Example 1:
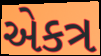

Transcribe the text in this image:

એકત્ર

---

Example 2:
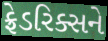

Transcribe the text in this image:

ફ્રેડરિક્સને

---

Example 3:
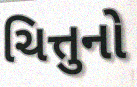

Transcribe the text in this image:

ચિત્તુનો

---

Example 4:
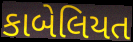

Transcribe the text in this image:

કાબેલિયત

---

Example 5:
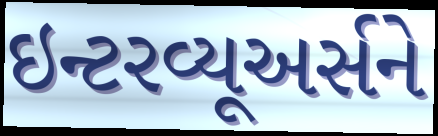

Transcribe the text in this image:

ઇન્ટરવ્યૂઅર્સને